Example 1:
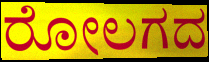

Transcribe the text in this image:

ರೋಲಗದ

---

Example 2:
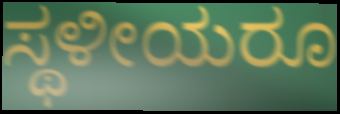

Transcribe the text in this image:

ಸ್ಥಳೀಯರೂ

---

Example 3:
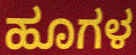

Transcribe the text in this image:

ಹೂಗಳ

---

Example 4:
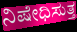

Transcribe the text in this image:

ನಿಷೇಧಿಸುತ್ತ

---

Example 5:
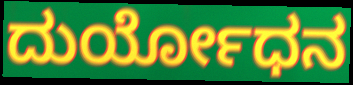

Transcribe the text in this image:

ದುರ್ಯೋಧನ